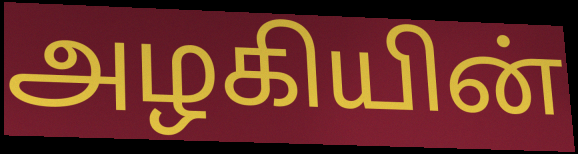
அழகியின்